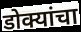
डोक्यांचा